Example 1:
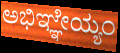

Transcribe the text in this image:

ಅಭಿಞ್ಞೇಯ್ಯಂ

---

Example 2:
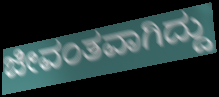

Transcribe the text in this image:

ಜೀವಂತವಾಗಿದ್ದು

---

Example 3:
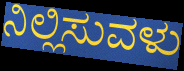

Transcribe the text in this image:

ನಿಲ್ಲಿಸುವಳು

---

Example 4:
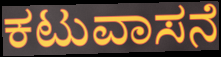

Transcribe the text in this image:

ಕಟುವಾಸನೆ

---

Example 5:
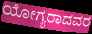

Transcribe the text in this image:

ಯೋಗ್ಯರಾದವರ